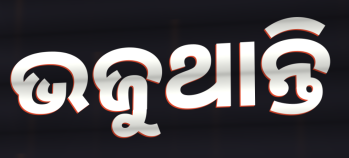
ଭଜୁଥାନ୍ତି